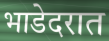
भाडेदरात